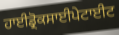
ਹਾਈਡ੍ਰੋਕਸਾਈਪੇਟਾਈਟ